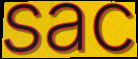
sac